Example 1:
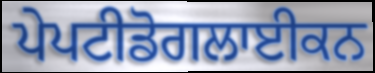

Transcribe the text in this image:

ਪੇਪਟੀਡੋਗਲਾਈਕਨ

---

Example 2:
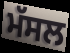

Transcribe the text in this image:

ਮੱਸਲ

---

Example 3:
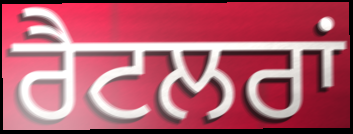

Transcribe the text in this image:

ਰੈਟਲਰਾਂ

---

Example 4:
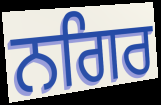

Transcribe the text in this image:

ਨਗਿਰ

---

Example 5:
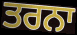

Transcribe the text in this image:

ਤਰਨਾ